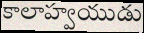
కాలాహ్వయుడు